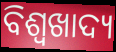
ବିଶ୍ୱଖାଦ୍ୟ